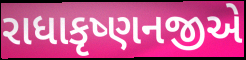
રાધાકૃષ્ણનજીએ